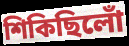
শিকিছিলোঁ